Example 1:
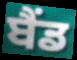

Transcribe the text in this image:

ਬੈਂਡ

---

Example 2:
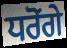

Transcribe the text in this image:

ਧਰੋਂਗੇ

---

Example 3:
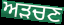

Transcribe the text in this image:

ਅੜਚਣ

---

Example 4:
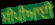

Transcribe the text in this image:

ਸੀਪੀਆਈ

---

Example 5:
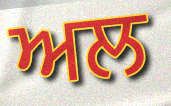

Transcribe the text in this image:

ਅਲ